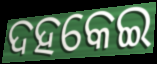
ଦହକେଇ